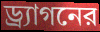
ড্র্যাগনের